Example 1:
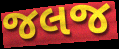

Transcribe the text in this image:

જલજ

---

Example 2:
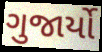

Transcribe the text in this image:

ગુજાર્યો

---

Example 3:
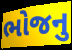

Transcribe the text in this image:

ભોજનુ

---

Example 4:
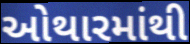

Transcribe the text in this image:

ઓથારમાંથી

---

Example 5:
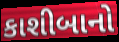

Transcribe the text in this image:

કાશીબાનો